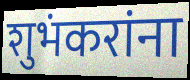
शुभंकरांना